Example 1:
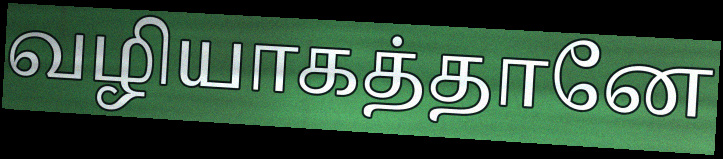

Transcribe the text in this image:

வழியாகத்தானே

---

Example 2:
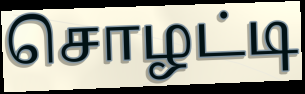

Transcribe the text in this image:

சொழட்டி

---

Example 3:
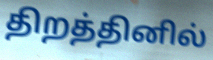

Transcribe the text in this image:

திறத்தினில்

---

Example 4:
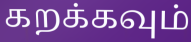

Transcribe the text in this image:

கறக்கவும்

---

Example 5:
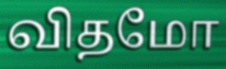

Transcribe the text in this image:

விதமோ